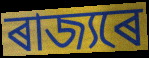
ৰাজ্যৰে